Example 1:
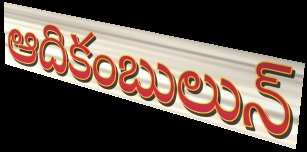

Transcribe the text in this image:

ఆదికంబులున్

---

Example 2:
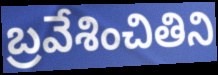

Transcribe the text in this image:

బ్రవేశించితిని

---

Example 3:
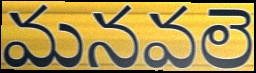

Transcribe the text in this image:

మనవలె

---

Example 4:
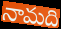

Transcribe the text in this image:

నామది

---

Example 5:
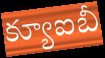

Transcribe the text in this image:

క్యూఐబీ